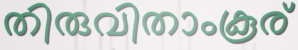
തിരുവിതാംകൂര്